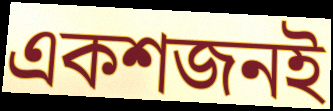
একশজনই